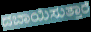
ದಬಾಯಿಸುತ್ತಾರೆ